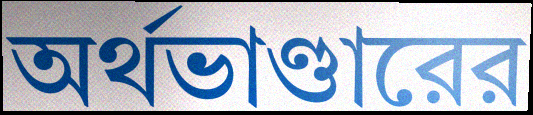
অর্থভাণ্ডারের